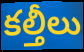
కల్తీలు